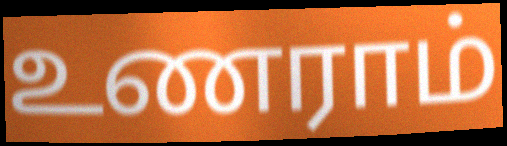
உணராம்